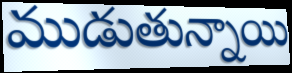
ముడుతున్నాయి